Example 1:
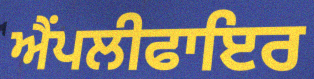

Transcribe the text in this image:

ਐਂਪਲੀਫਾਇਰ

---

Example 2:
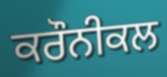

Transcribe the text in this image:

ਕਰੌਨੀਕਲ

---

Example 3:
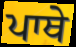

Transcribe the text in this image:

ਪਾਥੇ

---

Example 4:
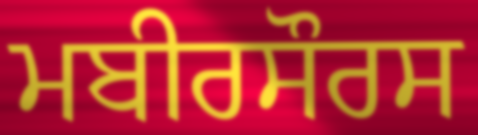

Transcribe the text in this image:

ਮਬੀਰਸੌਰਸ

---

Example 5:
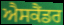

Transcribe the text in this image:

ਐਸਕੈਂਡਰ